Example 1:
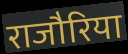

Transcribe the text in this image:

राजौरिया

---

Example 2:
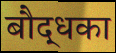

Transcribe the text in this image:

बौद्धका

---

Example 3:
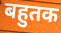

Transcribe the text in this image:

बहुतक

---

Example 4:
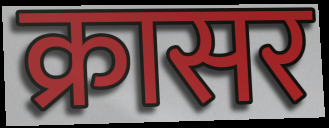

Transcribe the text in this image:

क्रासर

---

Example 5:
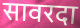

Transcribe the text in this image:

सावरदा